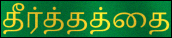
தீர்த்தத்தை